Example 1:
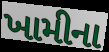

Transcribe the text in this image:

ખામીના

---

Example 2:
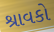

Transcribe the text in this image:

શ્રાવકો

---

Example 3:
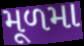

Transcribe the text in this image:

મૂળમા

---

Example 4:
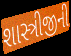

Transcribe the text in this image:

શાસ્ત્રીજીની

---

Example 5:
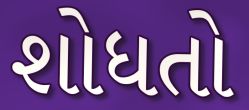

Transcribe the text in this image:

શોધતો